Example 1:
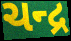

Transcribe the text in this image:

ચન્દ્ર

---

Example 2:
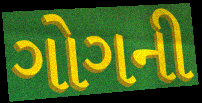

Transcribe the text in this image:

ગોગની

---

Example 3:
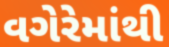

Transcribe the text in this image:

વગેરેમાંથી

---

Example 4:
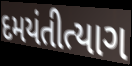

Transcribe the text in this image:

દમયંતીત્યાગ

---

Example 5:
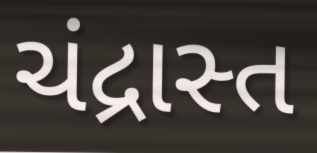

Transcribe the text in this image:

ચંદ્રાસ્ત